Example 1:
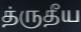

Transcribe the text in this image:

த்ருதீய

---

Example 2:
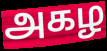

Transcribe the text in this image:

அகழ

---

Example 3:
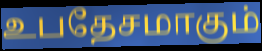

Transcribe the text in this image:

உபதேசமாகும்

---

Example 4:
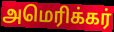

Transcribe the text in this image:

அமெரிக்கர்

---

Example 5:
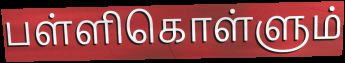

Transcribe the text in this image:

பள்ளிகொள்ளும்